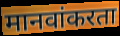
मानवांकरता